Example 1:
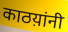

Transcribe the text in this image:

काठय़ांनी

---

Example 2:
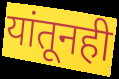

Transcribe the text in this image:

यांतूनही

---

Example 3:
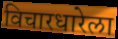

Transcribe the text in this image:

विचारधारेला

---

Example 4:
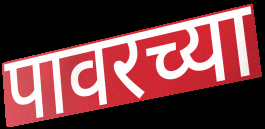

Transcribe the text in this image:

पावरच्या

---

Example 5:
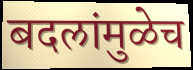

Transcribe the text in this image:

बदलांमुळेच